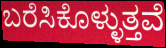
ಬರೆಸಿಕೊಳ್ಳುತ್ತವೆ